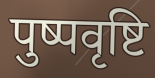
पुष्पवृष्टि